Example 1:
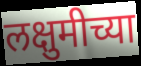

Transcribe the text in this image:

लक्षुमीच्या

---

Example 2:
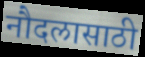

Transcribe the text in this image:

नौदलासाठी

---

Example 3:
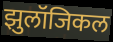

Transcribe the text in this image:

झुलॉजिकल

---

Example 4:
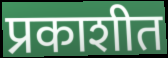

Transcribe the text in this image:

प्रकाशीत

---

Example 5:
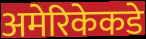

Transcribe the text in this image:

अमेरिकेकडे